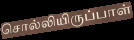
சொல்லியிருப்பாள்